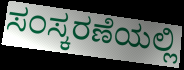
ಸಂಸ್ಕರಣೆಯಲ್ಲಿ